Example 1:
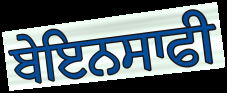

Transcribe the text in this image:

ਬੇਇਨਸਾਫੀ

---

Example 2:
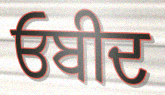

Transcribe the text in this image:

ਓਬੀਦ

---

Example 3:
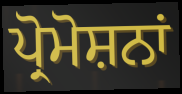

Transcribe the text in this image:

ਪ੍ਰੋਮੋਸ਼ਨਾਂ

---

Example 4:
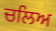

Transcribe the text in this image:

ਚਲਿਅ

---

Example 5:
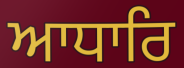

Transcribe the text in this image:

ਆਧਾਰਿ